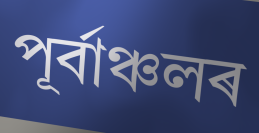
পূৰ্বাঞ্চলৰ